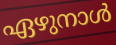
ഏഴുനാൾ